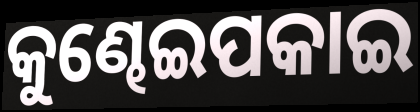
କୁଣ୍ଢେଇପକାଇ